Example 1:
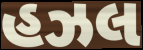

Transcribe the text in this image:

હઝલ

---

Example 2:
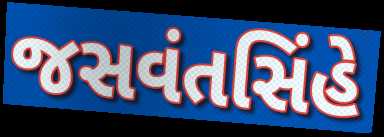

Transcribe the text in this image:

જસવંતસિંહે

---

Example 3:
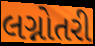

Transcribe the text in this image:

લગ્નોતરી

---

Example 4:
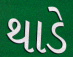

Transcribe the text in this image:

થાડે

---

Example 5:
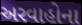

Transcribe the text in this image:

અરવાહોના